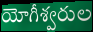
యోగీశ్వరుల